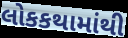
લોકકથામાંથી